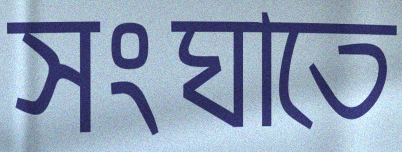
সংঘাতে